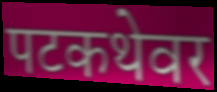
पटकथेवर